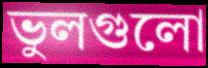
ভুলগুলো